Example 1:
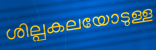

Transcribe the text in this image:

ശില്പകലയോടുള്ള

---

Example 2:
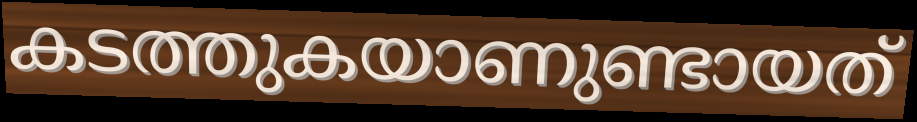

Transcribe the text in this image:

കടത്തുകയാണുണ്ടായത്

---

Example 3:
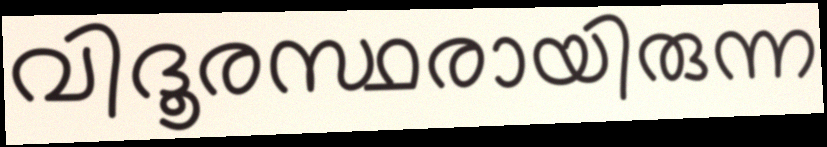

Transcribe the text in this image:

വിദൂരസ്ഥരായിരുന്ന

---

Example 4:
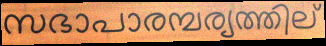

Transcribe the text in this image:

സഭാപാരമ്പര്യത്തില്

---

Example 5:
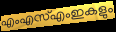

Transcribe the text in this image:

എംഎസ്എംഇകളും